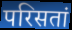
परिसतां